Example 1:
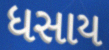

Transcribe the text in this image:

ધસાય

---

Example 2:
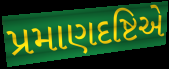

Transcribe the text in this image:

પ્રમાણદષ્ટિએ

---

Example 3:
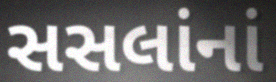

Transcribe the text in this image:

સસલાંનાં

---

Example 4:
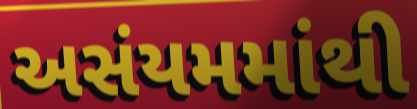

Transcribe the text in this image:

અસંયમમાંથી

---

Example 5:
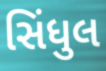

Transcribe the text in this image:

સિંધુલ